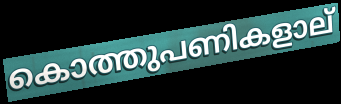
കൊത്തുപണികളാല്